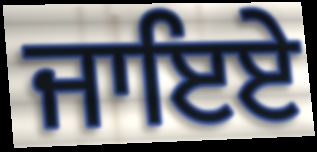
ਜਾਇਏ